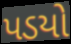
પડયો